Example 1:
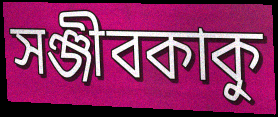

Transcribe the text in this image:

সঞ্জীবকাকু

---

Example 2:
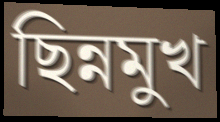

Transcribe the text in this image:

ছিন্নমুখ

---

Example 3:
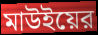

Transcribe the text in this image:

মাউইয়ের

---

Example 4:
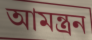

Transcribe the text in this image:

আমন্ত্রন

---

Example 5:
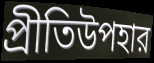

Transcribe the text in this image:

প্রীতিউপহার